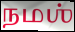
நமஶ்